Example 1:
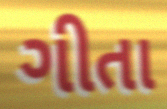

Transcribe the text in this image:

ગીતા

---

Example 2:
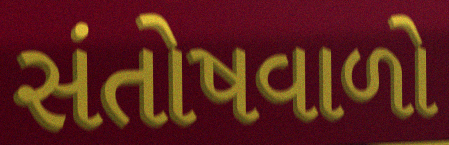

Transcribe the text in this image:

સંતોષવાળો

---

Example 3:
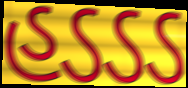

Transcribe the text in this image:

હડડડ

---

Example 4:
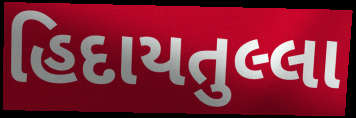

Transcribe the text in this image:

હિદાયતુલ્લા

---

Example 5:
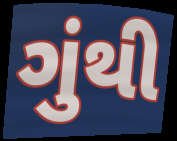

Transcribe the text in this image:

ગુંથી